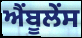
ਐਂਬੂਲੇਂਸ